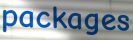
packages